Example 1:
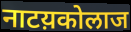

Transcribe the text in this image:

नाटय़कोलाज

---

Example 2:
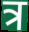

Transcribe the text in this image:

त्र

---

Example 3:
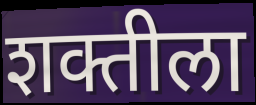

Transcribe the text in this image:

शक्तीला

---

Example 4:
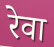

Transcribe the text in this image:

रेवा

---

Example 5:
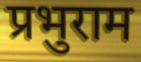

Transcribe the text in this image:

प्रभुराम